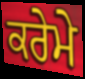
ਕਰੇਮੇ